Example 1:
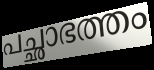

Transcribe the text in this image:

പച്ഛാഭത്തം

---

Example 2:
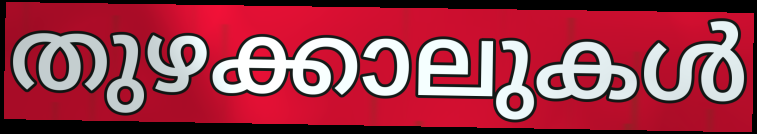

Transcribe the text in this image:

തുഴക്കാലുകൾ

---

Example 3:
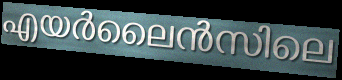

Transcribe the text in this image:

എയർലൈൻസിലെ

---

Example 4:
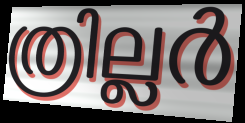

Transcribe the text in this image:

ത്രില്ലർ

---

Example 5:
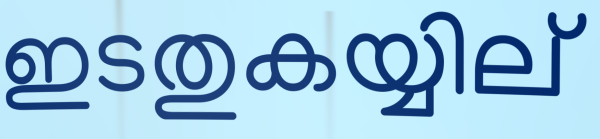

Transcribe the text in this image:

ഇടതുകയ്യില്